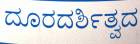
ದೂರದರ್ಶಿತ್ವದ